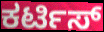
ಕರ್ಟಿಸ್